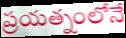
ప్రయత్నంలోనే